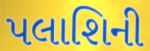
પલાશિની